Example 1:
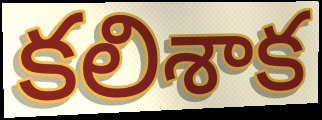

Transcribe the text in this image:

కలిశాక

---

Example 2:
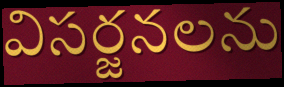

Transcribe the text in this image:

విసర్జనలను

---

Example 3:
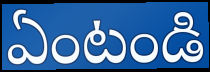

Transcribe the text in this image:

ఏంటండి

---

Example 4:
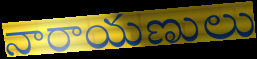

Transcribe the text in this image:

నారాయణులు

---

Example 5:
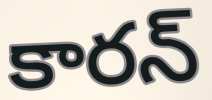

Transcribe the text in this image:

కారన్